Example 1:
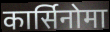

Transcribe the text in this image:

कार्सिनोमा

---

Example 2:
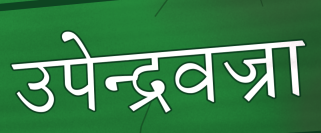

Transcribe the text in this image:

उपेन्द्रवज्रा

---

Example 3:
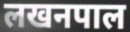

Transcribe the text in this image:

लखनपाल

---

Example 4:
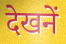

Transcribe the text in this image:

देखनें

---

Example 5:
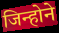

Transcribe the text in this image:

जिन्‍होने